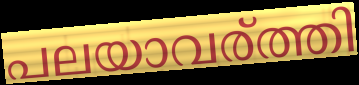
പലയാവര്ത്തി